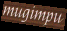
mugimpu